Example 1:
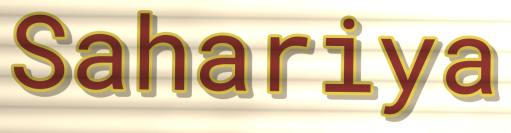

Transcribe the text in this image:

Sahariya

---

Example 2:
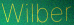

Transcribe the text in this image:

Wilber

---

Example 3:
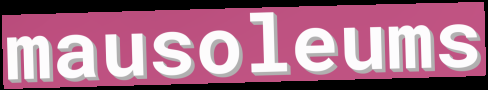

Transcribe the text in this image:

mausoleums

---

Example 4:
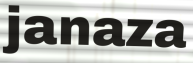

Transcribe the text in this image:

janaza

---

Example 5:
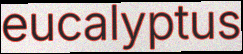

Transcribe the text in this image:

eucalyptus